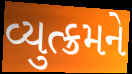
વ્યુત્ક્રમને